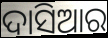
ଦାସିଆର